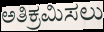
ಅತಿಕ್ರಮಿಸಲು